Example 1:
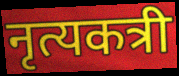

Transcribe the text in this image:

नृत्यकत्री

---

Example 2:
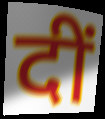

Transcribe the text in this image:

दीं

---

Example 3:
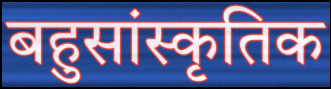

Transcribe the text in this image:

बहुसांस्कृतिक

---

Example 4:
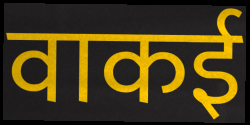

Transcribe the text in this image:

वाकई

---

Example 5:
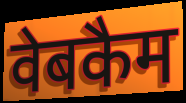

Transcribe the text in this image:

वेबकैम